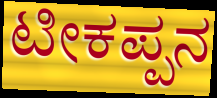
ಟೀಕಪ್ಪನ